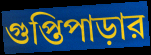
গুপ্তিপাড়ার